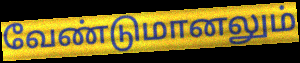
வேண்டுமானலும்